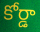
కోర్డా